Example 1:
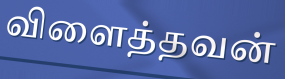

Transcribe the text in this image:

விளைத்தவன்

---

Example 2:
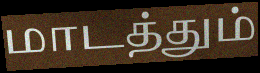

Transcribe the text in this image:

மாடத்தும்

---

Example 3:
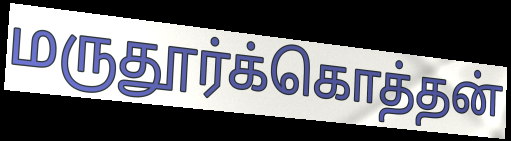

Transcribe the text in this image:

மருதூர்க்கொத்தன்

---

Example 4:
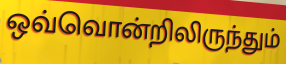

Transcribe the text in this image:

ஒவ்வொன்றிலிருந்தும்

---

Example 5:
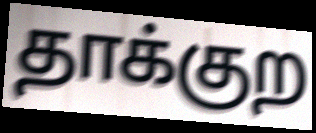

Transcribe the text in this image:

தாக்குற